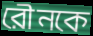
রৌনকে